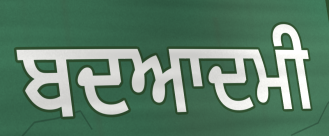
ਬਦਆਦਮੀ